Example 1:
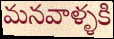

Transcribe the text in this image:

మనవాళ్ళకి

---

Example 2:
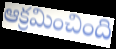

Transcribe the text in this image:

ఆక్రమించింది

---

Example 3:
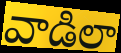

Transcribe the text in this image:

వాడిలా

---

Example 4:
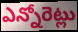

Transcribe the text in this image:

ఎన్నోరెట్లు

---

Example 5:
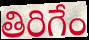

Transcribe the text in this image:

తిరిగేం